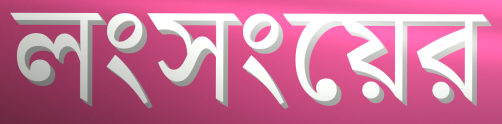
লংসংয়ের